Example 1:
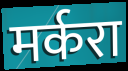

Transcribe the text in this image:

मर्करा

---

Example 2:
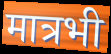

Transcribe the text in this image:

मात्रभी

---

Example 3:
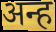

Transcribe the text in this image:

अन्ह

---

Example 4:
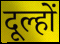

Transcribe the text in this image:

दूल्हों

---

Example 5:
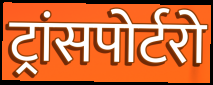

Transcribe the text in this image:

ट्रांसपोर्टरो